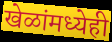
खेळांमध्येही